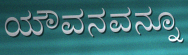
ಯೌವನವನ್ನೂ